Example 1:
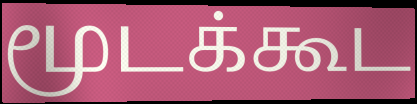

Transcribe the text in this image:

மூடக்கூட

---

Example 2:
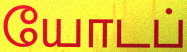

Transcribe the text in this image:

யோடப்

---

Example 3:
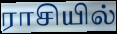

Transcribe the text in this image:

ராசியில்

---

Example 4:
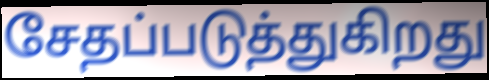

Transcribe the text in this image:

சேதப்படுத்துகிறது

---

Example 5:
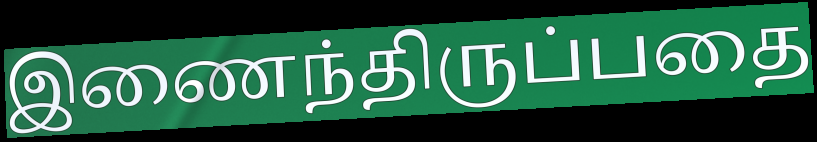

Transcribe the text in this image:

இணைந்திருப்பதை